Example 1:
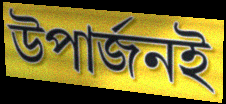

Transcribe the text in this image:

উপার্জনই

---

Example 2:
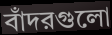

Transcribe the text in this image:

বাঁদরগুলো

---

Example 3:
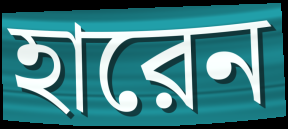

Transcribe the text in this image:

হারেন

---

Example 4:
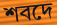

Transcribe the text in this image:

শবদে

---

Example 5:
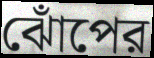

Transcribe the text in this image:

ঝোঁপের